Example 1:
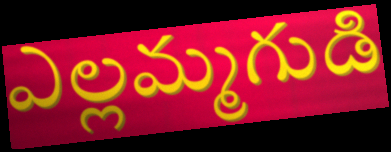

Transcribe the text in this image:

ఎల్లమ్మగుడి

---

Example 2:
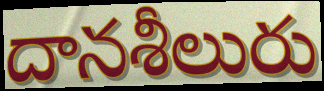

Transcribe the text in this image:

దానశీలురు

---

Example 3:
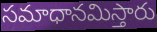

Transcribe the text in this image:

సమాధానమిస్తారు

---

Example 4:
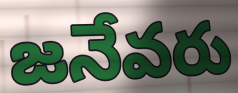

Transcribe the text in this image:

జనేవరు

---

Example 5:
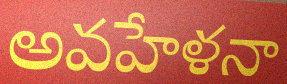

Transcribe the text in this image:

అవహేళనా